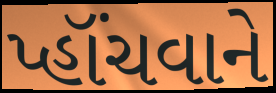
પ્હૉંચવાને